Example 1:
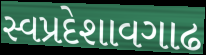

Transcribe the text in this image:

સ્વપ્રદેશાવગાઢ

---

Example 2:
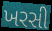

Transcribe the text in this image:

ખરસી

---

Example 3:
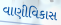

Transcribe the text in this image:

વાણીવિકાસ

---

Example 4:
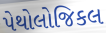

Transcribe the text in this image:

પેથોલોજિકલ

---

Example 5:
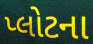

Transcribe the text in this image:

પ્લોટના